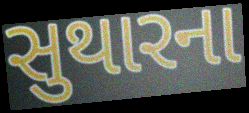
સુથારના